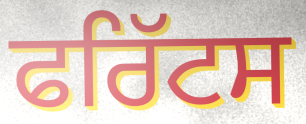
ਫਰਿੱਟਸ